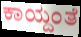
ಕಾಯ್ದಂತೆ